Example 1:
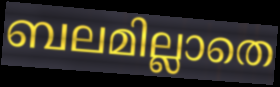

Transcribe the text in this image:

ബലമില്ലാതെ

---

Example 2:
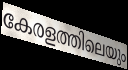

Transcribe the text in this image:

കേരളത്തിലെയും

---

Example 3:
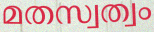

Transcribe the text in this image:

മതസ്വത്വം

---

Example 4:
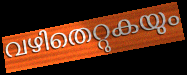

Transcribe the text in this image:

വഴിതെറ്റുകയും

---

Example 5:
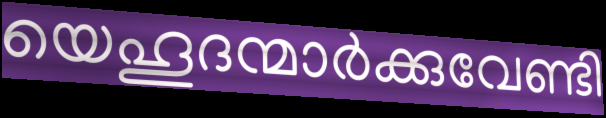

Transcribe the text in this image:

യെഹൂദന്മാർക്കുവേണ്ടി